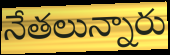
నేతలున్నారు